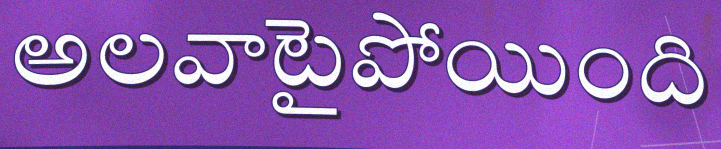
అలవాటైపోయింది